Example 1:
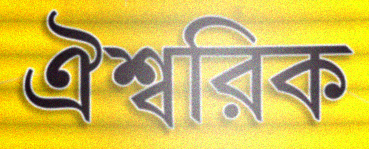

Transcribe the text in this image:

ঐশ্বরিক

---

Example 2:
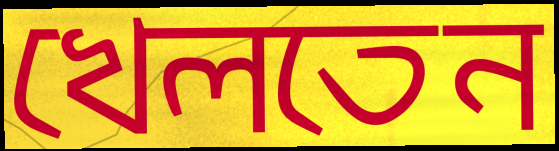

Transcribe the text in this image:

খেলতেন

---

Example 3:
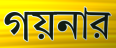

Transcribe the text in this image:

গয়নার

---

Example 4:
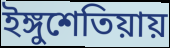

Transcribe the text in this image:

ইঙ্গুশেতিয়ায়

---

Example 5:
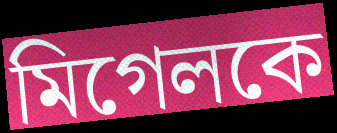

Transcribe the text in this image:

মিগেলকে